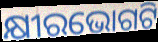
କ୍ଷୀରଭୋଗଟି